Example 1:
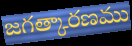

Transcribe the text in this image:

జగత్కారణము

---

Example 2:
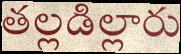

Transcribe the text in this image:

తల్లడిల్లారు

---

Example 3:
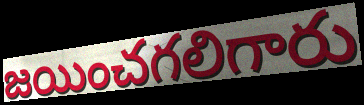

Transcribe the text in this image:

జయించగలిగారు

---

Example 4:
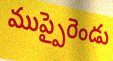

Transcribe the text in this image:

ముప్పైరెండు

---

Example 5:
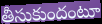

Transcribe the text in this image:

తీసుకుందంటూ